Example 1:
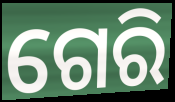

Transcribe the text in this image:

ଗେରି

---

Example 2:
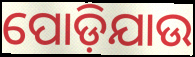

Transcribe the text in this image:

ପୋଡ଼ିଯାଉ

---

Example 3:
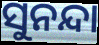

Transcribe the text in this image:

ସୁନନ୍ଦା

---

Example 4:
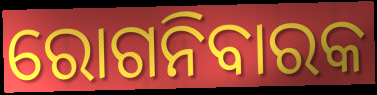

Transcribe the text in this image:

ରୋଗନିବାରକ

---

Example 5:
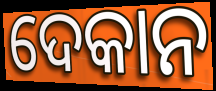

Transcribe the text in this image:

ଦେକାନ